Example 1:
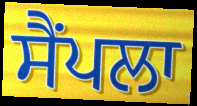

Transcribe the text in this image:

ਸੈਂਪਲਾ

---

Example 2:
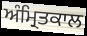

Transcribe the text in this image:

ਅੰਮ੍ਰਿਤਕਾਲ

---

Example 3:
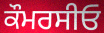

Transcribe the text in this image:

ਕੌਮਰਸੀਓ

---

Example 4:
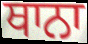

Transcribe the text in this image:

ਥਾਨਾ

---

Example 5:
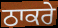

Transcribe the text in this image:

ਠਾਕਰੇ